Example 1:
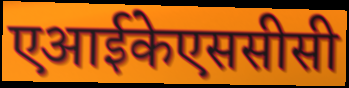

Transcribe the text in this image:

एआईकेएससीसी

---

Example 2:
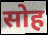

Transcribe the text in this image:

सोह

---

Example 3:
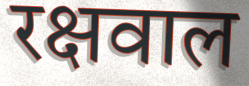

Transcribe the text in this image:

रक्षवाल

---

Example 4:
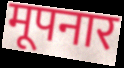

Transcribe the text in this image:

मूपनार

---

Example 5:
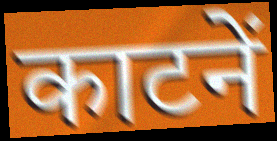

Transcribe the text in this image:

काटनें